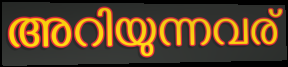
അറിയുന്നവര്